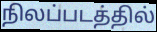
நிலப்படத்தில்